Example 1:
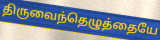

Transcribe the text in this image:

திருவைந்தெழுத்தையே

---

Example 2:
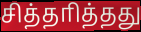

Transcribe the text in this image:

சித்தரித்தது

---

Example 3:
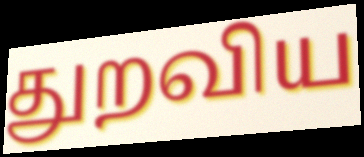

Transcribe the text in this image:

துறவிய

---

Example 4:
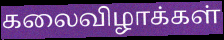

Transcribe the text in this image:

கலைவிழாக்கள்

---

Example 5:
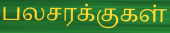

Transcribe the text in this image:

பலசரக்குகள்